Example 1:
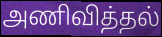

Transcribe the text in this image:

அணிவித்தல்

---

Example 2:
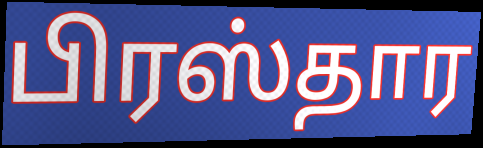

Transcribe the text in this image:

பிரஸ்தார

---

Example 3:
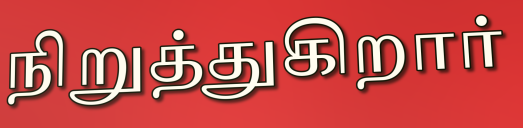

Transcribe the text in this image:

நிறுத்துகிறார்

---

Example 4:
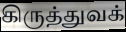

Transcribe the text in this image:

கிருத்துவக்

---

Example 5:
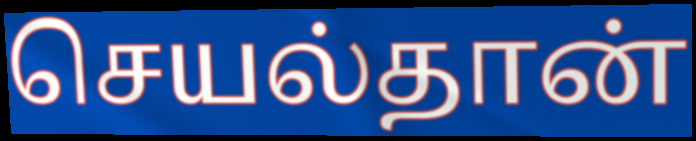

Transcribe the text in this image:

செயல்தான்